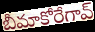
బీమాకోరేగావ్